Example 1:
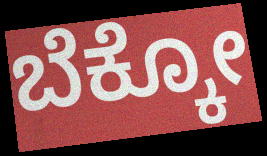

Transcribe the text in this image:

ಬೆಕ್ಕೋ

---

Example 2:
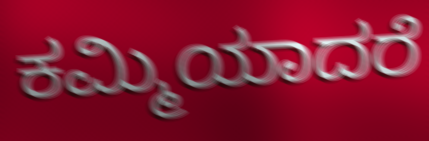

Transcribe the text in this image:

ಕಮ್ಮಿಯಾದರೆ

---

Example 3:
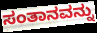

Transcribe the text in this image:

ಸಂತಾನವನ್ನು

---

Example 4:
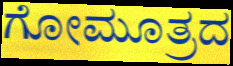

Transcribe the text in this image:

ಗೋಮೂತ್ರದ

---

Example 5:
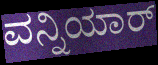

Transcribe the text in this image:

ವನ್ನಿಯಾರ್